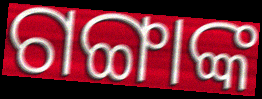
ଗଙ୍ଗାଙ୍କ